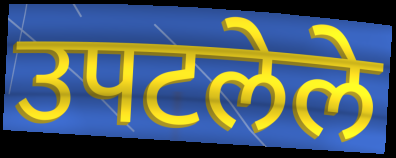
उपटलेले